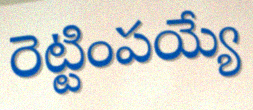
రెట్టింపయ్యే